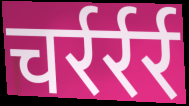
चर्रर्रर्र